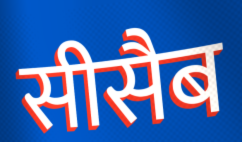
सीसैब